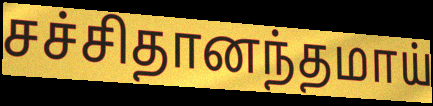
சச்சிதானந்தமாய்